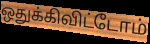
ஒதுக்கிவிட்டோம்